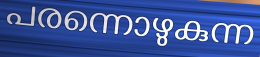
പരന്നൊഴുകുന്ന